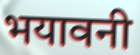
भयावनी